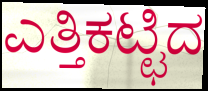
ಎತ್ತಿಕಟ್ಟಿದ